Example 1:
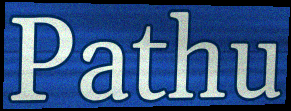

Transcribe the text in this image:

Pathu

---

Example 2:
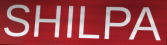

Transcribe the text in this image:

SHILPA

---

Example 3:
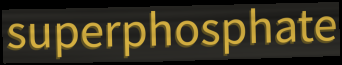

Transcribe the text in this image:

superphosphate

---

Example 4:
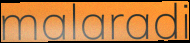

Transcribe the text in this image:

malaradi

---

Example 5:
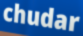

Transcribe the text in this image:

chudar